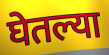
घेतल्या